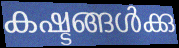
കഷ്ടങ്ങൾക്കു